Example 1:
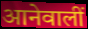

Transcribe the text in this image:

आनेवालीं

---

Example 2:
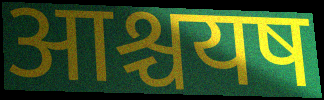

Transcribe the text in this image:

आश्चयष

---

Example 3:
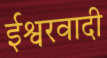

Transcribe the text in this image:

ईश्वरवादी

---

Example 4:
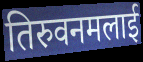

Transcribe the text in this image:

तिरुवनमलाई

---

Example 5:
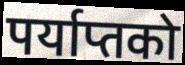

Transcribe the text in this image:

पर्याप्तको